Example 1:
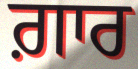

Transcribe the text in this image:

ਗ਼ਾਰ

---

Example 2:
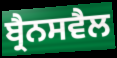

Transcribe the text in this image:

ਬ੍ਰੈਨਸਵੈਲ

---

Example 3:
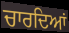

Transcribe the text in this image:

ਚਾਰਦਿਆਂ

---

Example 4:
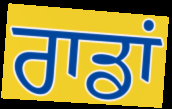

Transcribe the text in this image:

ਰਾਡਾਂ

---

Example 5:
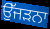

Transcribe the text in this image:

ਉੱਜੜਨਾ